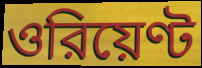
ওরিয়েণ্ট